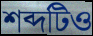
শব্দটিও